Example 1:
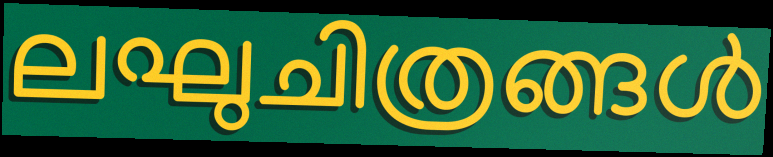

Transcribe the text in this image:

ലഘുചിത്രങ്ങൾ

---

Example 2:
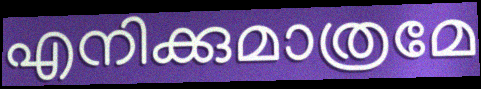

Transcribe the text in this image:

എനിക്കുമാത്രമേ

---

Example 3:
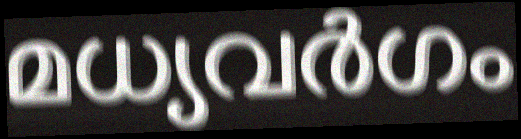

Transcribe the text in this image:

മധ്യവർഗം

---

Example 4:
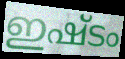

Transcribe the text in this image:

ഇഷ്ടം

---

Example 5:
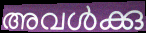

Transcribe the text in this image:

അവൾക്കു